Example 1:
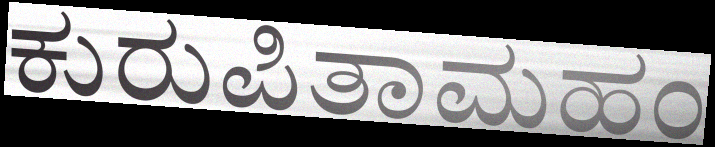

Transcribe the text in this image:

ಕುರುಪಿತಾಮಹಂ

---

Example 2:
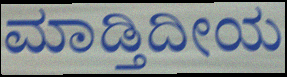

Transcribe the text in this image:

ಮಾಡ್ತಿದೀಯ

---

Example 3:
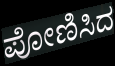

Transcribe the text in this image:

ಪೋಣಿಸಿದ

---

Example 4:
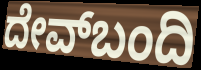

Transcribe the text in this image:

ದೇವ್‌ಬಂದಿ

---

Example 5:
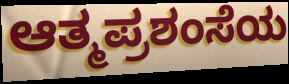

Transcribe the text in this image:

ಆತ್ಮಪ್ರಶಂಸೆಯ